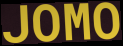
JOMO